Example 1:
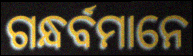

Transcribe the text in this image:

ଗନ୍ଧର୍ବମାନେ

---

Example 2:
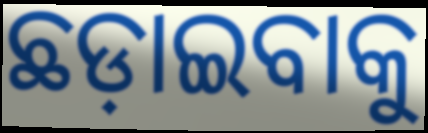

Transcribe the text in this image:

ଛଡ଼ାଇବାକୁ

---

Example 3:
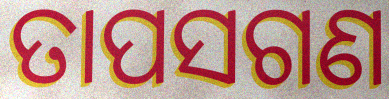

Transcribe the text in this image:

ତାପସଗଣ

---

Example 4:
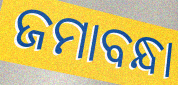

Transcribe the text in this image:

ଜମାବନ୍ଧା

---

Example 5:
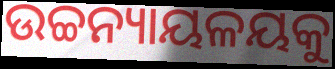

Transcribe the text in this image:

ଉଚ୍ଚନ୍ୟାୟଳୟକୁ